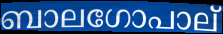
ബാലഗോപാല്